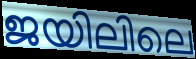
ജയിലിലെ